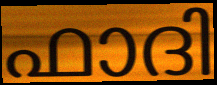
ഫാദി